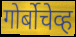
गोर्बोचेव्ह